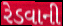
રેડવાની